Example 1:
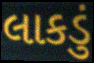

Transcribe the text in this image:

લાકડું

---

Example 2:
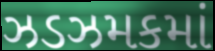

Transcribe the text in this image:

ઝડઝમકમાં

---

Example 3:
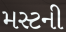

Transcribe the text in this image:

મસ્ટની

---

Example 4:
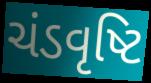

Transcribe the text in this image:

ચંડવૃષ્ટિ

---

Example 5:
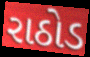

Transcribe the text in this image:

રાઠોડ